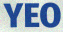
YEO